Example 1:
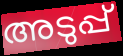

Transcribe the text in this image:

അടുപ്പ്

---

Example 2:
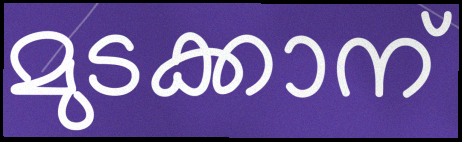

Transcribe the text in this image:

മുടക്കാന്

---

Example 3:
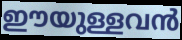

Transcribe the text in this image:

ഈയുള്ളവൻ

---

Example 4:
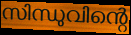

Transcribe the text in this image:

സിന്ധുവിന്റെ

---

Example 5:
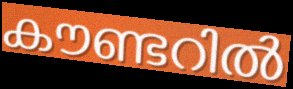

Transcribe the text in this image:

കൗണ്ടറിൽ